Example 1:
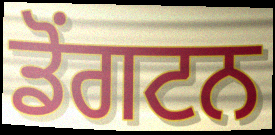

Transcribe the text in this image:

ਡੋਂਗਟਨ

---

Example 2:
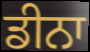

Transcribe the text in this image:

ਡੀਨਾ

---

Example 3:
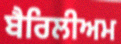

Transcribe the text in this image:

ਬੈਰਿਲੀਅਮ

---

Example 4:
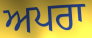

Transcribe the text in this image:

ਅਪਰਾ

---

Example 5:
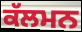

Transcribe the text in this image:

ਕੱਲਮਨ